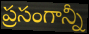
ప్రసంగాన్నీ